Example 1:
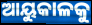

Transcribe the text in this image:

ଆୟୁକାଳକୁ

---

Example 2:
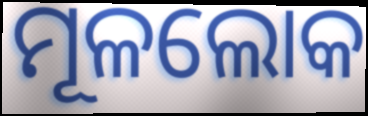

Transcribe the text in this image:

ମୂଳଲୋକ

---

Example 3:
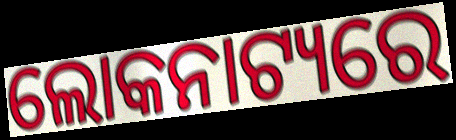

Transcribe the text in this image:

ଲୋକନାଟ୍ୟରେ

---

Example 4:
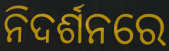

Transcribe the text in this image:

ନିଦର୍ଶନରେ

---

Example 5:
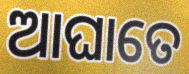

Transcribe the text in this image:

ଆଘାତେ